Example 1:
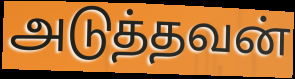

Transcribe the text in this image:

அடுத்தவன்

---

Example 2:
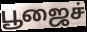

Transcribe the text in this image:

பூஜைச்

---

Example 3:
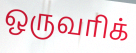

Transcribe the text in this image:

ஒருவரிக்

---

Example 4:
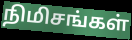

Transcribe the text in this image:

நிமிசங்கள்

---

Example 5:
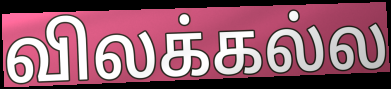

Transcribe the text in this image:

விலக்கல்ல